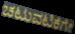
ಚಟುವಟಿಕೆಗೇ